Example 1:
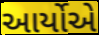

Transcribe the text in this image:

આર્યોએ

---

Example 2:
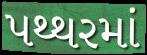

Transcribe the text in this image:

પથ્થરમાં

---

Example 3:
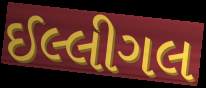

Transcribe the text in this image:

ઈલ્લીગલ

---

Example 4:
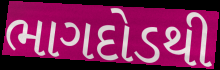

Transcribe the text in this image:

ભાગદોડથી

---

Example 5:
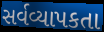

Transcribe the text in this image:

સર્વવ્યાપકતા